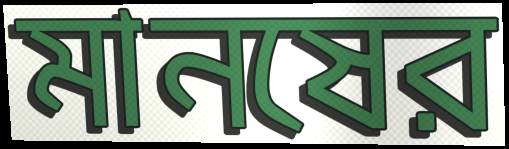
মানষের